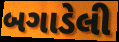
બગાડેલી